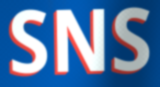
SNS